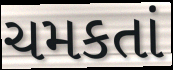
ચમકતાં